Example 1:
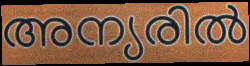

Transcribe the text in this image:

അന്യരിൽ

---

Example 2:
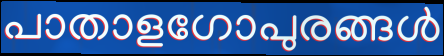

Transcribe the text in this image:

പാതാളഗോപുരങ്ങൾ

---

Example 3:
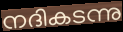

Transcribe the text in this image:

നദികടന്നു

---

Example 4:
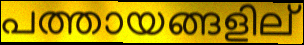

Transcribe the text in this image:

പത്തായങ്ങളില്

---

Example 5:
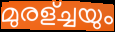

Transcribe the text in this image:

മുരള്ച്ചയും